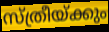
സ്ത്രീയ്ക്കും